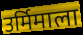
उर्मिमाला